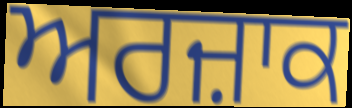
ਅਰਜ਼ਾਕ